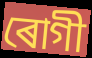
ৰোগী